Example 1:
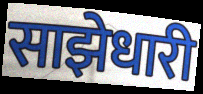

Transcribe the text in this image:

साझेधारी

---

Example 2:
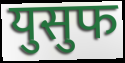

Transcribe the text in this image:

युसुफ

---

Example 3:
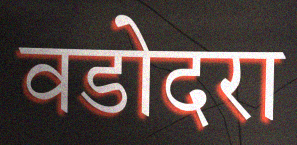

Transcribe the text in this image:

वडोदरा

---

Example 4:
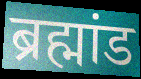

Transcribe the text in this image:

ब्रह्मांड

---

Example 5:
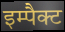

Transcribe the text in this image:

इम्पैक्ट